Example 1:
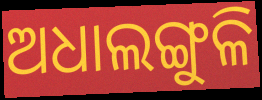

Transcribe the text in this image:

ଅଧାଲଙ୍ଗୁଳି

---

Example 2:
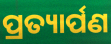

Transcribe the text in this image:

ପ୍ରତ୍ୟାର୍ପଣ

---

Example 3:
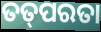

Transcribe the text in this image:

ତତ୍‌ପରତା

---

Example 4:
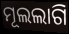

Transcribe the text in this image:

ମୂଲଲାଗି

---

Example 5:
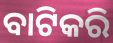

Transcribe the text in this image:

ବାଟିକରି